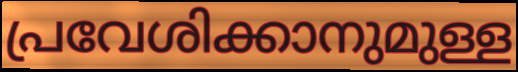
പ്രവേശിക്കാനുമുള്ള